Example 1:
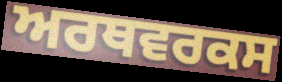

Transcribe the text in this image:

ਅਰਥਵਰਕਸ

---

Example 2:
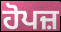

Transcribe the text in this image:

ਹੋਪਜ਼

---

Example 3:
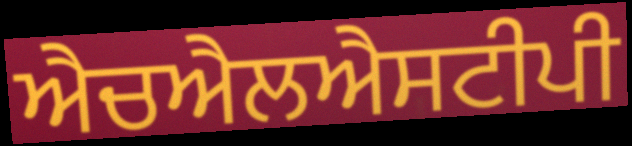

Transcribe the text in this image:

ਐਚਐਲਐਸਟੀਪੀ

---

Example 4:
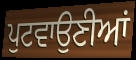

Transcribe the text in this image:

ਪੁਟਵਾਉਣੀਆਂ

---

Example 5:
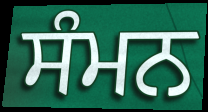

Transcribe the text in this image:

ਸੰਮਨ